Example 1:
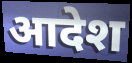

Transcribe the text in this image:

आदेश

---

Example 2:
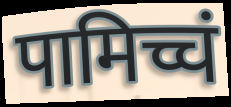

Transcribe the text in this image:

पामिच्चं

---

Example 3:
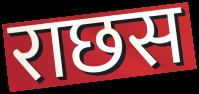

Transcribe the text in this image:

राछस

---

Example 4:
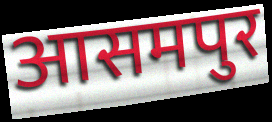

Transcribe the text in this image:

आसमपुर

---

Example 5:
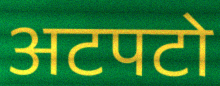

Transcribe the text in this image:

अटपटो